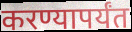
करण्यापर्यंत